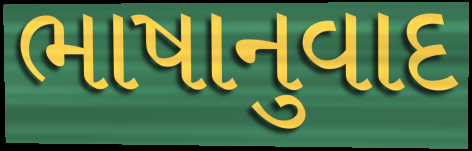
ભાષાનુવાદ